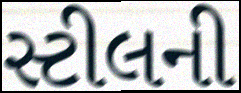
સ્ટીલની